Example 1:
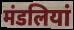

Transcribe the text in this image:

मंडलियां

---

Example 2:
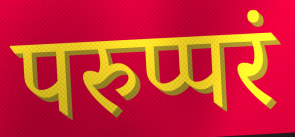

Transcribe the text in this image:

परुप्परं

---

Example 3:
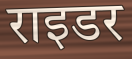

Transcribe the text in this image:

राइडर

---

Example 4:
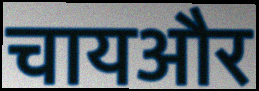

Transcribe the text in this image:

चायऔर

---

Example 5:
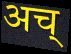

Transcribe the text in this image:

अच्